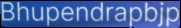
Bhupendrapbjp